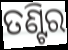
ତଣ୍ଟିର